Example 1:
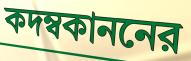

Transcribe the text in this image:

কদম্বকাননের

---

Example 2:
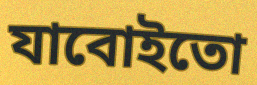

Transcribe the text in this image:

যাবোইতো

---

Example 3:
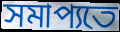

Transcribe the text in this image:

সমাপ্যতে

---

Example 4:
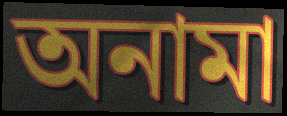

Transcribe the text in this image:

অনামা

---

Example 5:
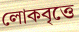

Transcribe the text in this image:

লোকবৃত্তে